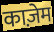
काज़ेम